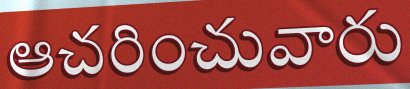
ఆచరించువారు